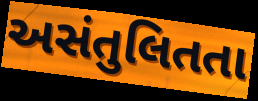
અસંતુલિતતા